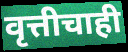
वृत्तीचाही